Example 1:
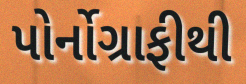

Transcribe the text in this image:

પોર્નોગ્રાફીથી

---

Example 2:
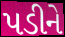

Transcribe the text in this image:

પડીને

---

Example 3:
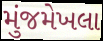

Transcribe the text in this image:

મુંજમેખલા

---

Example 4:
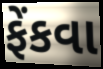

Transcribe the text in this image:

ફેંકવા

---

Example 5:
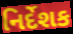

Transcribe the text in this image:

નિર્દેશક